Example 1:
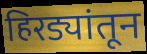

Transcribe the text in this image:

हिरड्यांतून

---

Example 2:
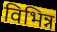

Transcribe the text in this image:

विभिन्न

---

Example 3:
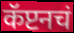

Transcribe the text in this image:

कॅप्टनचं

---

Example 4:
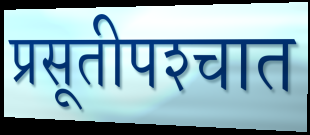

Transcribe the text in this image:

प्रसूतीपश्चात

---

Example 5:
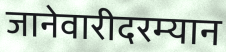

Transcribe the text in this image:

जानेवारीदरम्यान